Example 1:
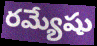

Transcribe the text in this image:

రమ్యేషు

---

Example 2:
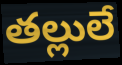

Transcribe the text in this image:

తల్లులే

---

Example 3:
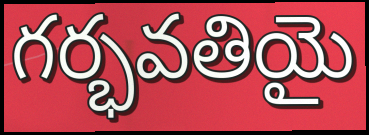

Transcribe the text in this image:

గర్భవతియై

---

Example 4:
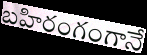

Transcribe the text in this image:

బహిరంగంగానే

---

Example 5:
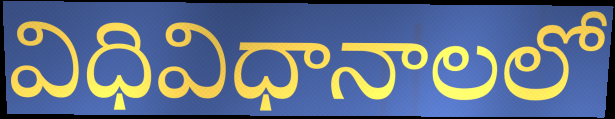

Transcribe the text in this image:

విధివిధానాలలో